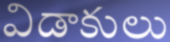
విడాకులు